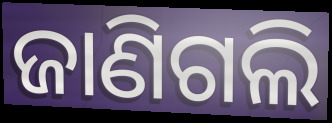
ଜାଣିଗଲି